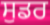
ਸੁਡਰ